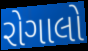
રોગાલો